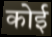
कोई